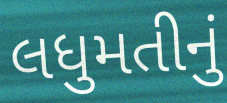
લધુમતીનું